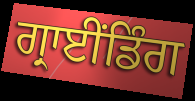
ਗ੍ਰਾਈਂਡਿੰਗ